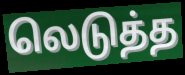
லெடுத்த